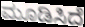
ಮೂಡಿಸಿದೆ